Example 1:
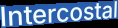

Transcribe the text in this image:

Intercostal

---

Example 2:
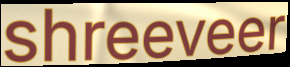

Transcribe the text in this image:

shreeveer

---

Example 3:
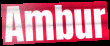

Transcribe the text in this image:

Ambur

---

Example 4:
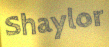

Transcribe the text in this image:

Shaylor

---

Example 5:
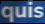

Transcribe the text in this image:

quis